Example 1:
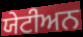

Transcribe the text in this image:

ਯੇਟੀਅਨ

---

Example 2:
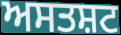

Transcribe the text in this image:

ਅਸਤਸ਼ਟ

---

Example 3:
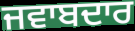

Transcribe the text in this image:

ਜਵਾਬਦਾਰ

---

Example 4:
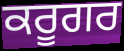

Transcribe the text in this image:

ਕਰੂਗਰ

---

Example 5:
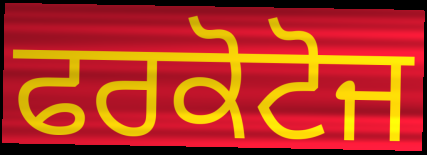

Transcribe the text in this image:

ਫਰਕੋਟੋਜ